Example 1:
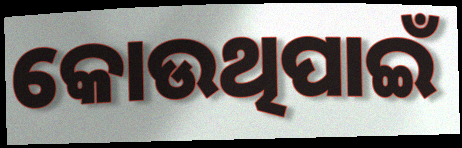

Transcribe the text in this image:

କୋଉଥିପାଇଁ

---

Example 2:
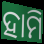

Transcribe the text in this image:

ହାମି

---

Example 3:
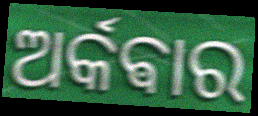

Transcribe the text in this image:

ଅର୍କଵାର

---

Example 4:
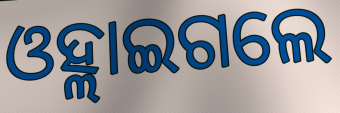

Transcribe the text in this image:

ଓହ୍ଲାଇଗଲେ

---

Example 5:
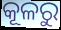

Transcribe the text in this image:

କୂଳରୁ